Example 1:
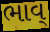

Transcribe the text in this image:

ભાવ્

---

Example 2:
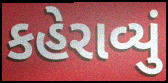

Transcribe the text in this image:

કહેરાવ્યું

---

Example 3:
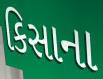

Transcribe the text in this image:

કિસાના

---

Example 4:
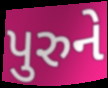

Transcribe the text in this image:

પુરુને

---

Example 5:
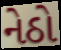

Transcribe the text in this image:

નેઠો